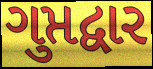
ગુપ્તદ્વાર